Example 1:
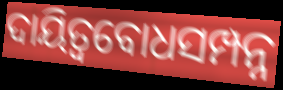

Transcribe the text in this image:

ଦାୟିତ୍ୱବୋଧସମ୍ପନ୍ନ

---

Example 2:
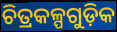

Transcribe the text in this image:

ଚିତ୍ରକଳ୍ପଗୁଡ଼ିକ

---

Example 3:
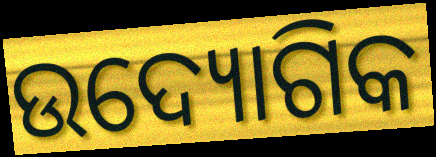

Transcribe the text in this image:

ଉଦ୍ୟୋଗିକ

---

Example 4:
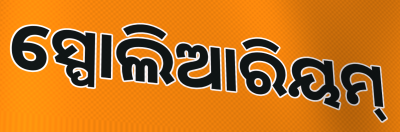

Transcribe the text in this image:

ସ୍ପୋଲିଆରିୟମ୍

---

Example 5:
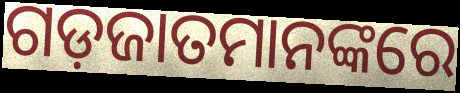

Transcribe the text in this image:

ଗଡ଼ଜାତମାନଙ୍କରେ